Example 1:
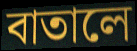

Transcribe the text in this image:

বাতালে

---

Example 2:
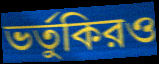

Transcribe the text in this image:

ভর্তুকিরও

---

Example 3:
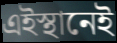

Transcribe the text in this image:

এইস্থানেই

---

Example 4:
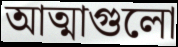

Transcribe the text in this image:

আত্মাগুলো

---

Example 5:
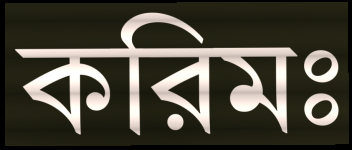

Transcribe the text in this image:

করিমঃ